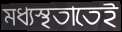
মধ্যস্থতাতেই